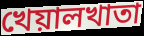
খেয়ালখাতা